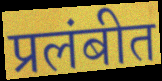
प्रलंबीत